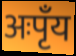
अःपृँय